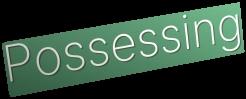
Possessing